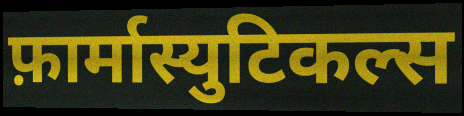
फ़ार्मास्युटिकल्स